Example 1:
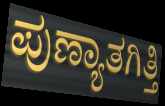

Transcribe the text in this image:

ಪುಣ್ಯಾತಗಿತ್ತಿ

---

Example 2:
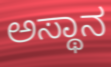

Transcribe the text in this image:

ಅಸ್ಥಾನ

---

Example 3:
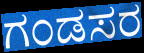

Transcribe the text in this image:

ಗಂಡಸರ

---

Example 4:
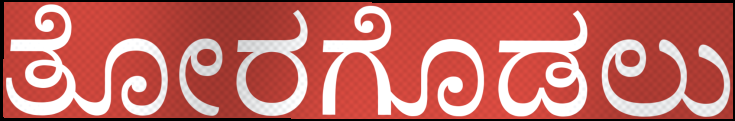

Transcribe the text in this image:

ತೋರಗೊಡಲು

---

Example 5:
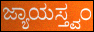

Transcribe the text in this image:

ಜ್ಯಾಯಸ್ತ್ವಂ